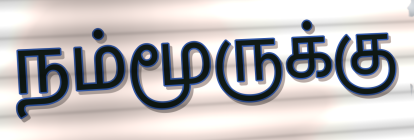
நம்மூருக்கு